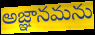
అజ్ఞానమను